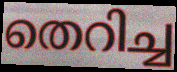
തെറിച്ച